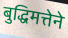
बुद्धिमत्तेने